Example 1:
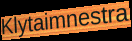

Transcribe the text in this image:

Klytaimnestra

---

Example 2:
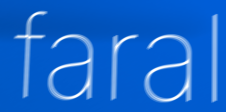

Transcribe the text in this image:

faral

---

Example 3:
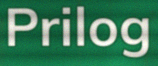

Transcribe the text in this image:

Prilog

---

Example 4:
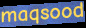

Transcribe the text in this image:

maqsood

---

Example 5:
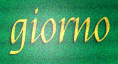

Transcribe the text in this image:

giorno